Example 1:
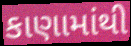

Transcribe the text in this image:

કાણામાંથી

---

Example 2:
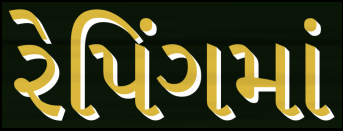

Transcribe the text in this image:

રેપિંગમાં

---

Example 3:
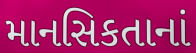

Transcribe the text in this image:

માનસિકતાનાં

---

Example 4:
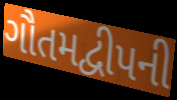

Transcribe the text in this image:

ગૌતમદ્વીપની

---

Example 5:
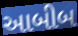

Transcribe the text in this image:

આબીબ